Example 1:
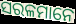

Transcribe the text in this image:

ସରଳମାନେ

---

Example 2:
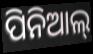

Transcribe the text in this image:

ପିନିଆଲ୍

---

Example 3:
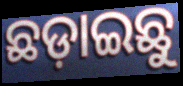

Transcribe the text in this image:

ଛଡ଼ାଇଛୁ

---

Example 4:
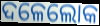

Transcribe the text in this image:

ଦଳେଲୋକ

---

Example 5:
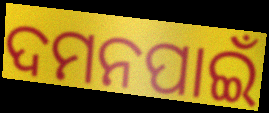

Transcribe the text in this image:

ଦମନପାଇଁ